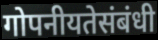
गोपनीयतेसंबंधी